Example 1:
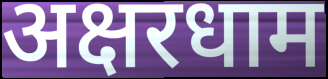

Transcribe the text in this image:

अक्षरधाम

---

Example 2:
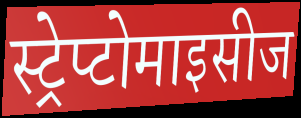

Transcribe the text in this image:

स्ट्रेप्टोमाइसीज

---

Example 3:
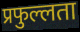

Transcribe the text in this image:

प्रफुल्लता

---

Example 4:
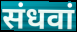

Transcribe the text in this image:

संधवां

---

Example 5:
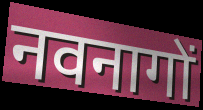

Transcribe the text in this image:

नवनागों